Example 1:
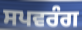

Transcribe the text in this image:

ਸਪਵਰੰਗ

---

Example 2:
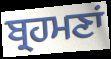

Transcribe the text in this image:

ਬ੍ਰਹਮਣਾਂ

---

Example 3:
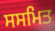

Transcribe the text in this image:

ਸਸਮਿਤ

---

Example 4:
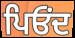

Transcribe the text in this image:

ਪਿਓਂਦ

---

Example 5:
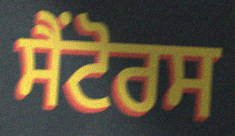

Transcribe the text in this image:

ਸੈਂਟੋਰਸ